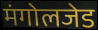
मंगोलजेड